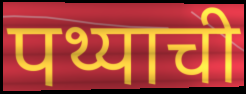
पथ्याची